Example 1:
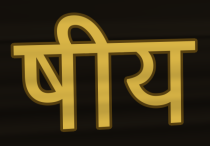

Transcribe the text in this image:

षीय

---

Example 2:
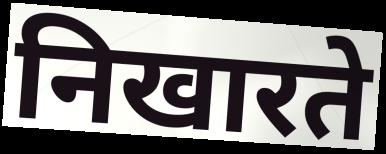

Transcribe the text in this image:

निखारते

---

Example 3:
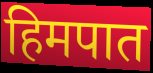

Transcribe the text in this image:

हिमपात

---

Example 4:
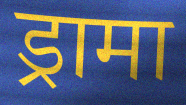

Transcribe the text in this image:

ड्रामा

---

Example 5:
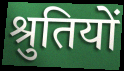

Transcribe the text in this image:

श्रुतियों